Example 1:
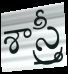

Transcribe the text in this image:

శాస్ర్తీ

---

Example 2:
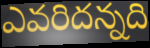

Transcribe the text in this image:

ఎవరిదన్నది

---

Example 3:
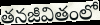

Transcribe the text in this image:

తనజీవితంలో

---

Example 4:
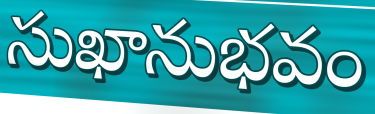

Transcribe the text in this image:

సుఖానుభవం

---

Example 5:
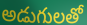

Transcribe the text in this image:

అడుగులతో